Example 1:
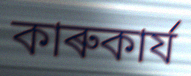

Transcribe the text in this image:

কাৰুকাৰ্য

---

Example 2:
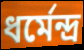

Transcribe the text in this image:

ধৰ্মেন্দ্ৰ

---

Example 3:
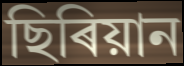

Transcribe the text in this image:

ছিৰিয়ান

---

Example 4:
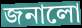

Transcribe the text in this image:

জনালো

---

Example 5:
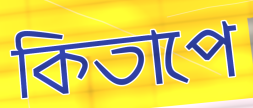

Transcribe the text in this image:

কিতাপে